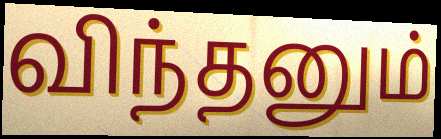
விந்தனும்